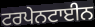
ਟਰਪੇਨਟਾਈਨ